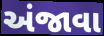
અંજાવા